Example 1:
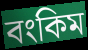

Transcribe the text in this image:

বংকিম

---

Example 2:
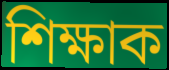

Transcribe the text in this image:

শিক্ষাক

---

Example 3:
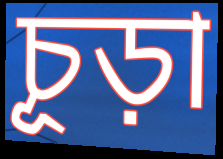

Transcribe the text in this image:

চূড়া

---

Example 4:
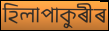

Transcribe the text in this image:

হিলাপাকুৰীৰ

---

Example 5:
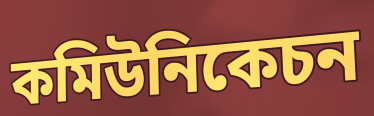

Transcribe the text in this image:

কমিউনিকেচন